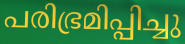
പരിഭ്രമിപ്പിച്ചു